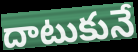
దాటుకునే